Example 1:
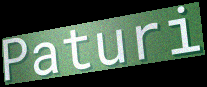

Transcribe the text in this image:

Paturi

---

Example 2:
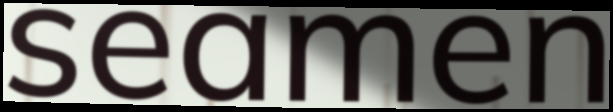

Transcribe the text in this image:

seamen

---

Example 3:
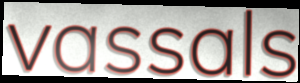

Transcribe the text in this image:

vassals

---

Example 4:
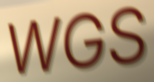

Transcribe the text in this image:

WGS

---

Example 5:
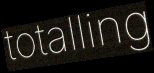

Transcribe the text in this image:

totalling